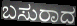
ಬಸುರಾದ